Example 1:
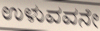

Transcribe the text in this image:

ಉಳುವವನೇ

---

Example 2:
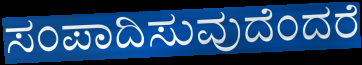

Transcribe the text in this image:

ಸಂಪಾದಿಸುವುದೆಂದರೆ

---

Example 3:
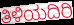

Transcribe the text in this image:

ತಿಳಿಯದಿರಿ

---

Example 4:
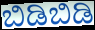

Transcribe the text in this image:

ಬಿಡಿಬಿಡಿ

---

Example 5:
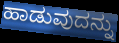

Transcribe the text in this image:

ಹಾಡುವುದನ್ನು